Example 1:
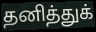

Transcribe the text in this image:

தனித்துக்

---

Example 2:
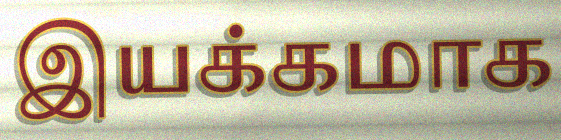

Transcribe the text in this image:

இயக்கமாக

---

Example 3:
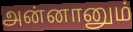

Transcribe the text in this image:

அன்னானும்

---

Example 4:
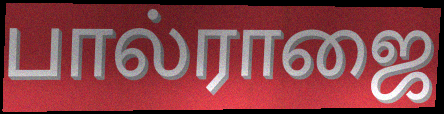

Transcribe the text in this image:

பால்ராஜை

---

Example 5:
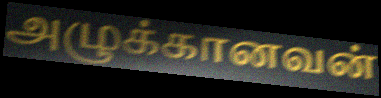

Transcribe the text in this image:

அழுக்கானவன்